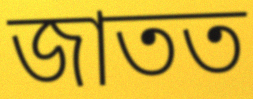
জাতত